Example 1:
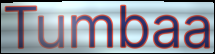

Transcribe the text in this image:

Tumbaa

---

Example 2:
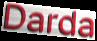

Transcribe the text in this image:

Darda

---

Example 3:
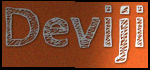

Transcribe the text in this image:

Deviji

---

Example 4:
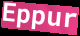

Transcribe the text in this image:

Eppur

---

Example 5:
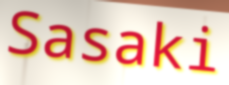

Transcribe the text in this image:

Sasaki